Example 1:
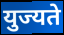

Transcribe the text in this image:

युज्यते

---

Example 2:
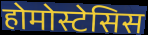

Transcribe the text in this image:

होमोस्टेसिस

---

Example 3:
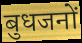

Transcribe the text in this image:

बुधजनों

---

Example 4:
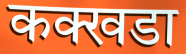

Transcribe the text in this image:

कक्खडा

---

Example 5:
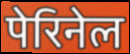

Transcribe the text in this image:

पेरिनेल